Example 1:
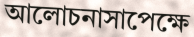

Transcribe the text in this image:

আলোচনাসাপেক্ষে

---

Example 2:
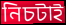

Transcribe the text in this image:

নিচটাই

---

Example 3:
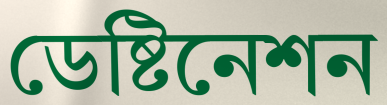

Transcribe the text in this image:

ডেষ্টিনেশন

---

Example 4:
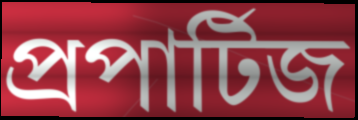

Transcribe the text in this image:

প্রপার্টিজ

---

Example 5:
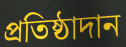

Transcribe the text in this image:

প্রতিষ্ঠাদান